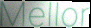
Mellor